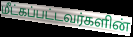
மீட்கப்பட்டவர்களின்